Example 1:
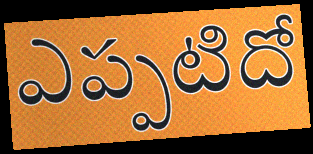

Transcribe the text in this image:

ఎప్పటిదో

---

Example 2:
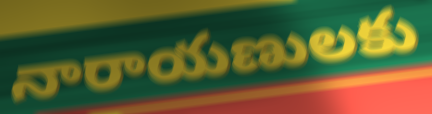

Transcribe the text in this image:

నారాయణులకు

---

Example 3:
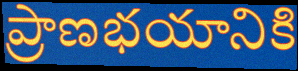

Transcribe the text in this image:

ప్రాణభయానికి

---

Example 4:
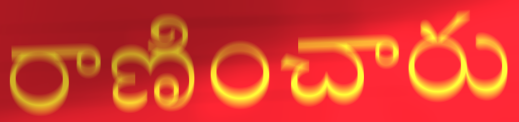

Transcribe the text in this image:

రాణించారు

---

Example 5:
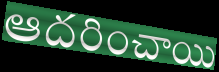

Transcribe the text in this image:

ఆదరించాయి